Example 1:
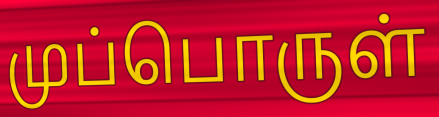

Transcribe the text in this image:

முப்பொருள்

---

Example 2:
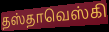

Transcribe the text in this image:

தஸ்தாவெஸ்கி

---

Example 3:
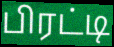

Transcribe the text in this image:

பிரட்டி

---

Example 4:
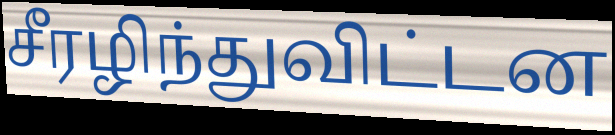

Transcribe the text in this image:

சீரழிந்துவிட்டன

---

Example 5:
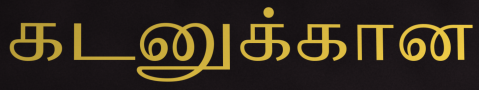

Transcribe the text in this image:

கடனுக்கான